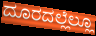
ದೂರದಲ್ಲೆಲ್ಲೂ